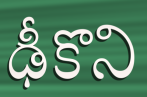
ఢీకొని